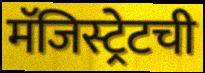
मॅजिस्ट्रेटची